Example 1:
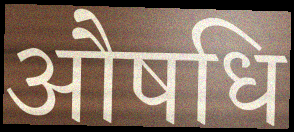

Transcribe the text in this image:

औषधि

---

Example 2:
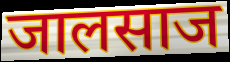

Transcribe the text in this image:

जालसाज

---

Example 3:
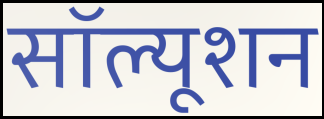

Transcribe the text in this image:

सॉल्यूशन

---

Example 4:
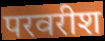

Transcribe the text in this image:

परवरीश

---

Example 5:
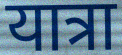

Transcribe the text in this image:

यात्रा